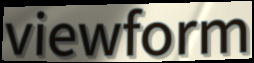
viewform